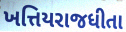
ખત્તિયરાજધીતા